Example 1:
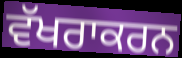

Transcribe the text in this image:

ਵੱਖਰਾਕਰਨ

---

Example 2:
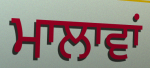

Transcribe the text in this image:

ਮਾਲਾਵਾਂ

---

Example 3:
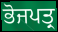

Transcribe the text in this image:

ਭੋਜਪਤ੍ਰ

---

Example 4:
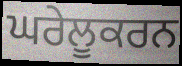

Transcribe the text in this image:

ਘਰੇਲੂਕਰਨ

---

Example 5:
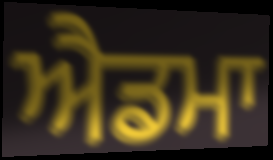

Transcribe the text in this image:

ਐਡਮਾ